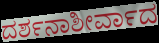
ದರ್ಶನಾಶೀರ್ವಾದ